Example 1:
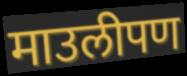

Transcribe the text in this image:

माउलीपण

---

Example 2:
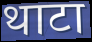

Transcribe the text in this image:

थाटा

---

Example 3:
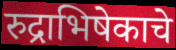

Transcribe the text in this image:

रुद्राभिषेकाचे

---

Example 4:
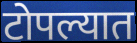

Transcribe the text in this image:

टोपल्यात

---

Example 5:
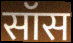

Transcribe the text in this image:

सॉस